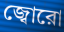
জ্বোরো